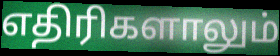
எதிரிகளாலும்